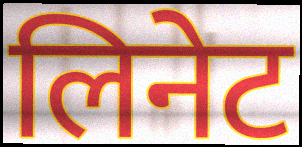
लिनेट